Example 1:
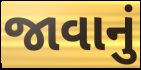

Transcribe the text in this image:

જાવાનું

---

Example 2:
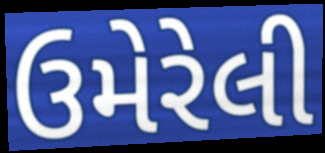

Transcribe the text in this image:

ઉમેરેલી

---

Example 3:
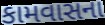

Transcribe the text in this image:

કામવાસના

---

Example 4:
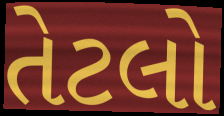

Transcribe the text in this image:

તેટલો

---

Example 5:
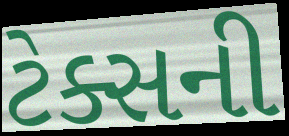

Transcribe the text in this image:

ટેક્સની